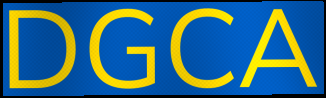
DGCA